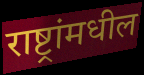
राष्ट्रांमधील